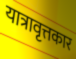
यात्रावृत्तकार